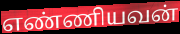
எண்ணியவன்